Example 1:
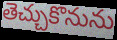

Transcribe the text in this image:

తెచ్చుకొనును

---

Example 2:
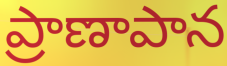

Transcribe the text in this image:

ప్రాణాపాన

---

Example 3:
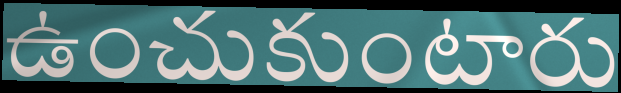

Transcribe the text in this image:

ఉంచుకుంటారు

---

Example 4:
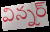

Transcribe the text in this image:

విన్నర్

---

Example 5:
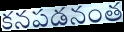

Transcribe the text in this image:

కనపడనంత